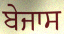
ਬੇਜਾਸ